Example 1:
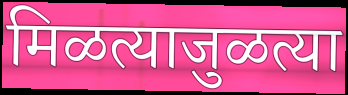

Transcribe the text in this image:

मिळत्याजुळत्या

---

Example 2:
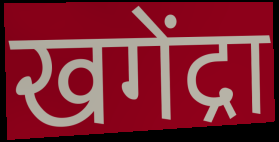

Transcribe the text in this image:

खगेंद्रा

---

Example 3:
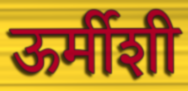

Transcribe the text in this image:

ऊर्मीशी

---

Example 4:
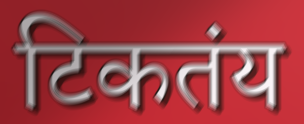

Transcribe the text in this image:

टिकतंय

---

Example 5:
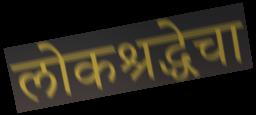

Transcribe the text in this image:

लोकश्रद्धेचा